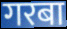
गरबा